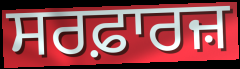
ਸਰਫ਼ਾਰਜ਼